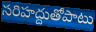
సరిహద్దుతోపాటు